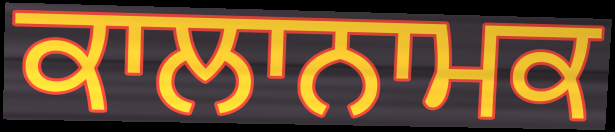
ਕਾਲਾਨਾਮਕ